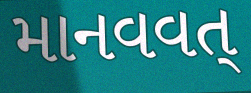
માનવવત્